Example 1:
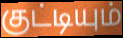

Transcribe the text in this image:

குட்டியும்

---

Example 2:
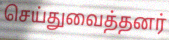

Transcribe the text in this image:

செய்துவைத்தனர்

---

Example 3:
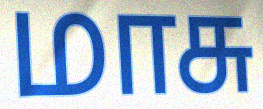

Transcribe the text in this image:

மாசு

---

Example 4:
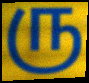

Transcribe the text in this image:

ரு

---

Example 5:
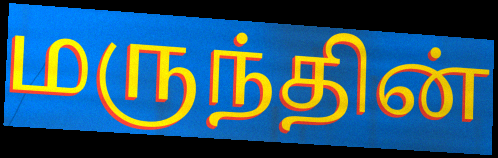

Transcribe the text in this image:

மருந்தின்